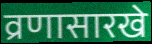
व्रणासारखे